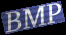
BMP